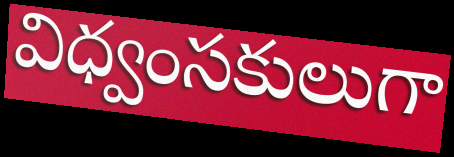
విధ్వంసకులుగా